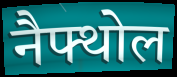
नैफ्थोल